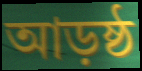
আড়ষ্ঠ